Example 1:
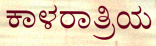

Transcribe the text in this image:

ಕಾಳರಾತ್ರಿಯ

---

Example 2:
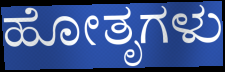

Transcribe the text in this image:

ಹೋತೃಗಳು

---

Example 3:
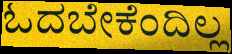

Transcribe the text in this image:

ಓದಬೇಕೆಂದಿಲ್ಲ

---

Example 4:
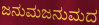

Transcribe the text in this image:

ಜನುಮಜನುಮದ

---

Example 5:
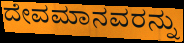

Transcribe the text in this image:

ದೇವಮಾನವರನ್ನು